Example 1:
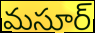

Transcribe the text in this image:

మసూర్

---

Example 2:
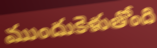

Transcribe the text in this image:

ముందుకెళుతోంది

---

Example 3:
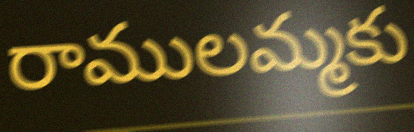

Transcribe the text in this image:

రాములమ్మకు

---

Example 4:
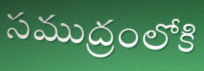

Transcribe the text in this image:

సముద్రంలోకి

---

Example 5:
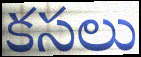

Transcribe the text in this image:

కసలు